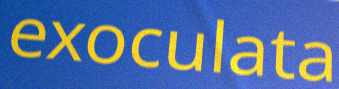
exoculata